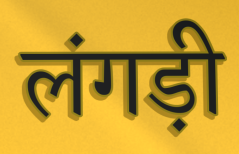
लंगड़ी